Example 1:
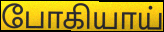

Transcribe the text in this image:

போகியாய்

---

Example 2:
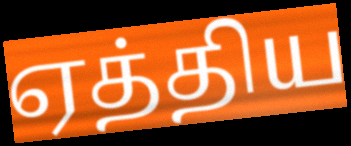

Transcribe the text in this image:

ஏத்திய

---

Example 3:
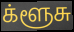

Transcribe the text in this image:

க்ளூசு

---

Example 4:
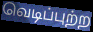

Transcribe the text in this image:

வெடிப்புற்ற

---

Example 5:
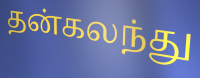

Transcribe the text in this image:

தன்கலந்து